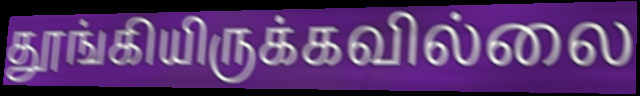
தூங்கியிருக்கவில்லை